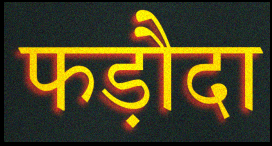
फड़ौदा